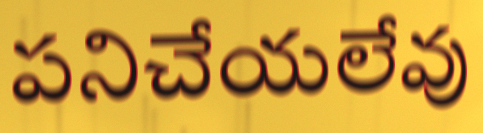
పనిచేయలేవు